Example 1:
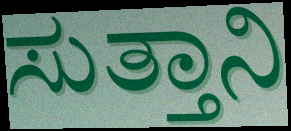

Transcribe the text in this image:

ಸುತ್ತಾನಿ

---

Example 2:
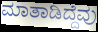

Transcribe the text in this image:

ಮಾತಾಡಿದ್ದೆವು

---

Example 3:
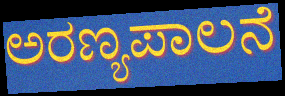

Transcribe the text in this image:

ಅರಣ್ಯಪಾಲನೆ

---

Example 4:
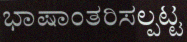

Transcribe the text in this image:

ಭಾಷಾಂತರಿಸಲ್ಪಟ್ಟ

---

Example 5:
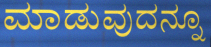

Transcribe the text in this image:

ಮಾಡುವುದನ್ನೂ